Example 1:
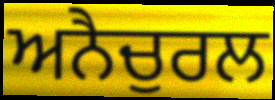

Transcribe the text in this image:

ਅਨੈਚੁਰਲ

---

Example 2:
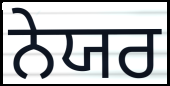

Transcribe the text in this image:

ਨੇਯਰ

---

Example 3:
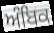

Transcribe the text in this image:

ਅੰਬਿਕ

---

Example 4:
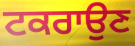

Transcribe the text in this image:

ਟਕਰਾਉਣ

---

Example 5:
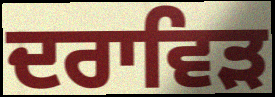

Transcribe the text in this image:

ਦਰਾਵਿੜ